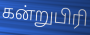
கன்றுபிரி